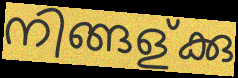
നിങ്ങള്ക്കു